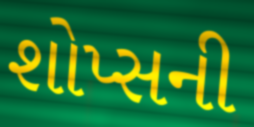
શોપ્સની